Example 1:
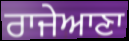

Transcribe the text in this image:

ਰਾਜੇਆਣਾ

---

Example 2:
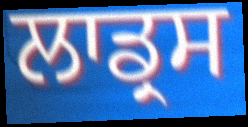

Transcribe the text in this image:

ਲਾਡ੍ਰਸ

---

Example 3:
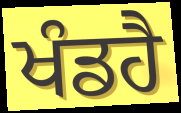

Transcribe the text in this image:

ਖੰਡਹੈ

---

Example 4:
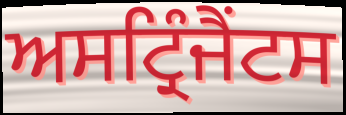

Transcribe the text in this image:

ਅਸਟ੍ਰਿੰਜੈਂਟਸ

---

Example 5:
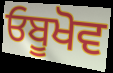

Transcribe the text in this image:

ਓਬੂਖੋਵ